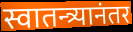
स्वातन्त्र्यानंतर